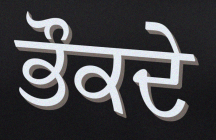
ਭੌਕਦੇ